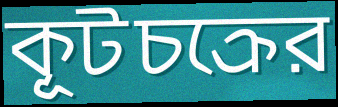
কূটচক্রের